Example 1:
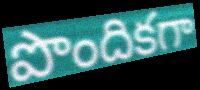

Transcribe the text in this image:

పొందికగా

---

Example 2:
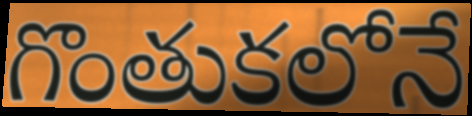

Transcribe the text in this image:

గొంతుకలోనే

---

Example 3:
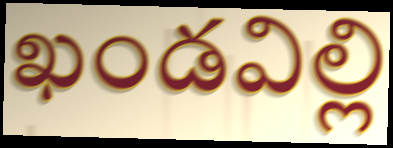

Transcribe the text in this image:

ఖండవిల్లి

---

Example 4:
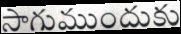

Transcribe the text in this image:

సాగుముందుకు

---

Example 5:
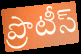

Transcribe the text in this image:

ప్రొటీస్